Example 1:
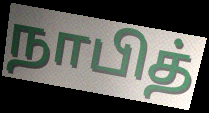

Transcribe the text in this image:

நாபித்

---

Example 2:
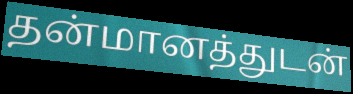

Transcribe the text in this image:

தன்மானத்துடன்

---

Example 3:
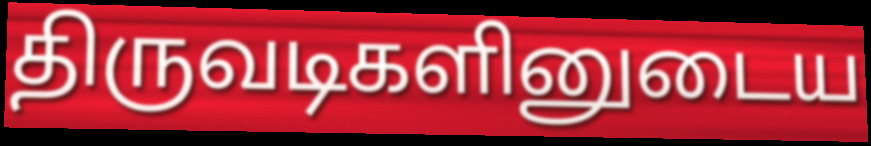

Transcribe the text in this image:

திருவடிகளினுடைய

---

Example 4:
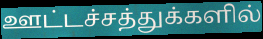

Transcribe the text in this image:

ஊட்டச்சத்துக்களில்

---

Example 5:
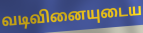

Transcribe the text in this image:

வடிவினையுடைய